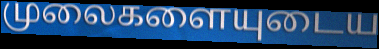
முலைகளையுடைய